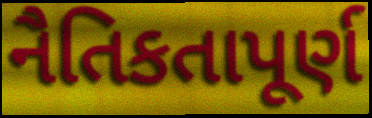
નૈતિકતાપૂર્ણ